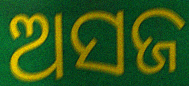
ଅସଜ